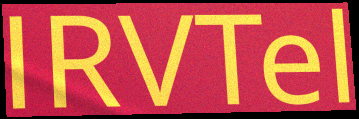
IRVTel